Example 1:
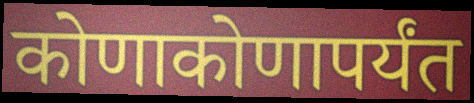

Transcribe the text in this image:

कोणाकोणापर्यंत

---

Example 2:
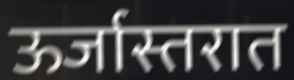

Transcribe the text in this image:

ऊर्जास्तरात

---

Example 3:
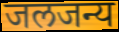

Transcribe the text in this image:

जलजन्य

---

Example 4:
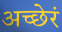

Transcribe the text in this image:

अच्छेरं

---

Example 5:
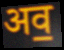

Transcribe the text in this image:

अव॒